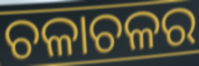
ଚଳାଚଳର